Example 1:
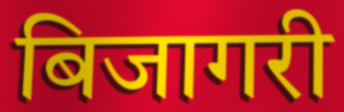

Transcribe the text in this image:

बिजागरी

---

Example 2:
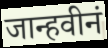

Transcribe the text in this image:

जान्हवीनं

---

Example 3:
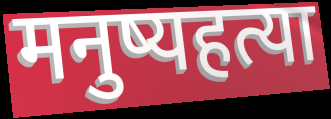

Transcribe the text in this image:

मनुष्यहत्या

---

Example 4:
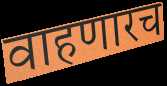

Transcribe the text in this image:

वाहणारच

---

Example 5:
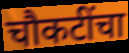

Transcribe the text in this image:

चौकटींचा